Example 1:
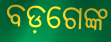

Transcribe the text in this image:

ବଡ଼ଗେଙ୍କ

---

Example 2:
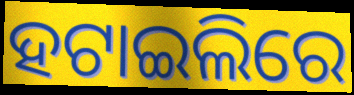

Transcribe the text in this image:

ହଟାଇଲିରେ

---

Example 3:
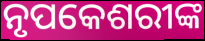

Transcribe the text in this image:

ନୃପକେଶରୀଙ୍କ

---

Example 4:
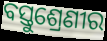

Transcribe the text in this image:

ବସ୍ତୁଶ୍ରେଣୀର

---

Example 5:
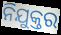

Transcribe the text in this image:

ନିଯୁକ୍ତର